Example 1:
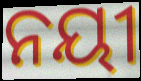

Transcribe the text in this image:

ନୟୀ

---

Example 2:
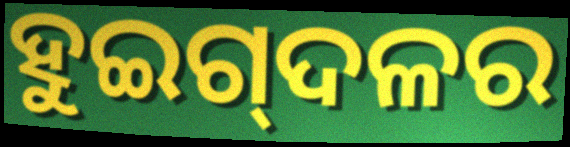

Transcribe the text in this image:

ହୁଇଗ୍‌ଦଳର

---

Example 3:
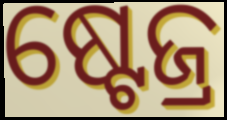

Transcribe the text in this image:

ଷ୍ଟେଜ୍ର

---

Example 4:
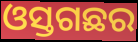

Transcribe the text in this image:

ଓସ୍ତଗଛର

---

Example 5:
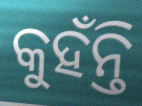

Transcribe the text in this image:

କୁହଁନ୍ତି